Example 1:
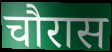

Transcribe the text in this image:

चौरास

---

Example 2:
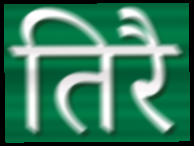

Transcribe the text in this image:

तिरै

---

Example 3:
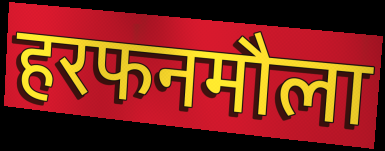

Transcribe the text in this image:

हरफनमौला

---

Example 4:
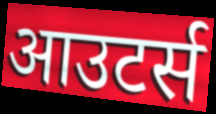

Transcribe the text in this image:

आउटर्स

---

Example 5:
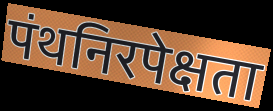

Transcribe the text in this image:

पंथनिरपेक्षता